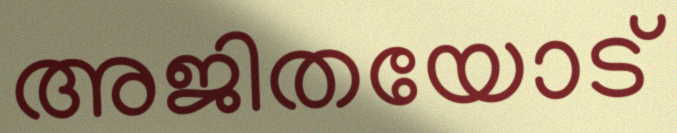
അജിതയോട്